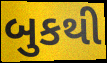
બુકથી